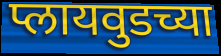
प्लायवुडच्या